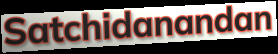
Satchidanandan